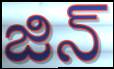
జిన్